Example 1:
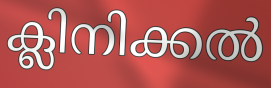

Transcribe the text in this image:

ക്ലിനിക്കൽ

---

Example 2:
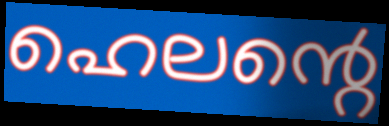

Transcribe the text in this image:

ഹെലന്റെ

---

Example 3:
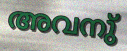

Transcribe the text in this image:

അവനു്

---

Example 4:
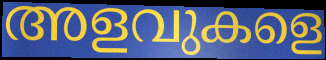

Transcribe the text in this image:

അളവുകളെ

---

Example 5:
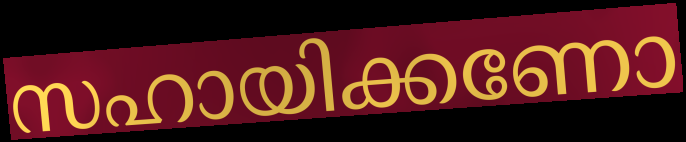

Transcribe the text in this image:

സഹായിക്കണോ